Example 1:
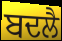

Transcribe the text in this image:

ਬਦਲੈ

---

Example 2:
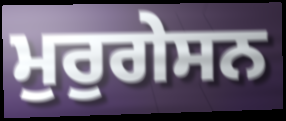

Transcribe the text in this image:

ਮੁਰੁਗੇਸਨ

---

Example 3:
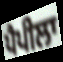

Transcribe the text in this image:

ਪੈਪੀਲਾ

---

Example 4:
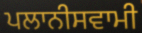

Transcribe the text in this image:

ਪਲਾਨੀਸਵਾਮੀ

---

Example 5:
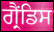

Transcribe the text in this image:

ਗ੍ਰੈਂਡਿਸ